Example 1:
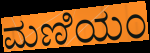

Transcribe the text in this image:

ಮಣಿಯಂ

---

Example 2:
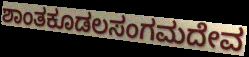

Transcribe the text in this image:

ಶಾಂತಕೂಡಲಸಂಗಮದೇವ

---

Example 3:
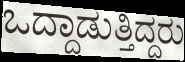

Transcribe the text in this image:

ಒದ್ದಾಡುತ್ತಿದ್ದರು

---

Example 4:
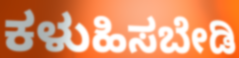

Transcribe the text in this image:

ಕಳುಹಿಸಬೇಡಿ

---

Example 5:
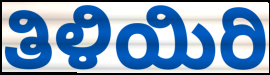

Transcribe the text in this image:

ತಿಳಿಯಿರಿ